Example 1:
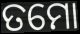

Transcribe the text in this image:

ତମୋ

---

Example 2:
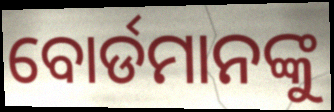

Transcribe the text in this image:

ବୋର୍ଡମାନଙ୍କୁ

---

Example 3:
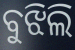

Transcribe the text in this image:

ବୁଝିଲି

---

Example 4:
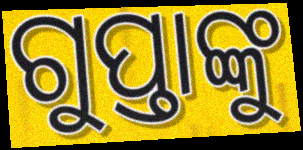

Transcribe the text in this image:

ଗୁପ୍ତାଙ୍କୁ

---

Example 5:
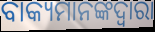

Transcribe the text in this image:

ବାକ୍ୟମାନଙ୍କଦ୍ୱାରା